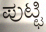
ಪುಟ್ಟಿ